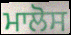
ਮਾਲੋਸ